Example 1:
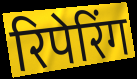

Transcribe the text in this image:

रिपेरिंग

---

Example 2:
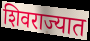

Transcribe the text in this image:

शिवराज्यात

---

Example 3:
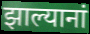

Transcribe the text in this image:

झाल्यानां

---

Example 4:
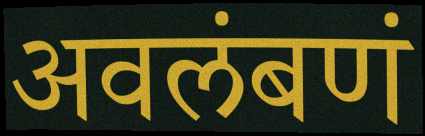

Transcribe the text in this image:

अवलंबणं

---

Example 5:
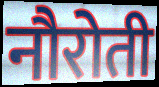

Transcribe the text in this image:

नौरोती